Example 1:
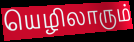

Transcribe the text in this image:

யெழிலாரும்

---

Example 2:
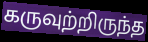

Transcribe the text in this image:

கருவுற்றிருந்த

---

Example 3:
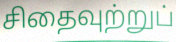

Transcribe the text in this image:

சிதைவுற்றுப்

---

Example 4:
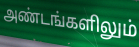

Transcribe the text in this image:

அண்டங்களிலும்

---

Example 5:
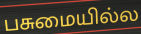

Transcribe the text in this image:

பசுமையில்ல